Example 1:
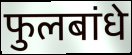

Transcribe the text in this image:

फुलबांधे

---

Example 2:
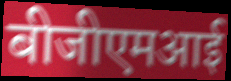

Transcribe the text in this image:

बीजीएमआई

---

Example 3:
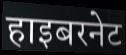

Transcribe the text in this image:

हाइबरनेट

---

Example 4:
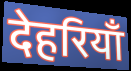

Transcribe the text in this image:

देहरियाँ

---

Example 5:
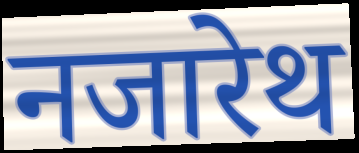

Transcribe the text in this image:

नजारेथ